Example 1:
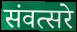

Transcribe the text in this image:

संवत्सरे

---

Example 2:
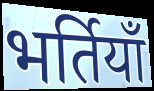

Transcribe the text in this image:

भर्तियाँ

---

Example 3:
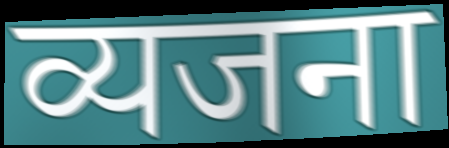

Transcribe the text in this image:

व्यजना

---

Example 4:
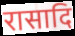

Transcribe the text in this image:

रासादि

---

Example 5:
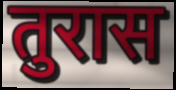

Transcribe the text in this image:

तुरास